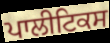
ਪਾਲੀਟਿਕਸ